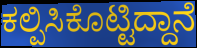
ಕಲ್ಪಿಸಿಕೊಟ್ಟಿದ್ದಾನೆ